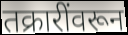
तक्रारींवरून